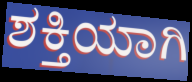
ಶಕ್ತಿಯಾಗಿ